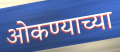
ओकण्याच्या